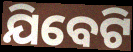
ଯିବେଟି